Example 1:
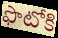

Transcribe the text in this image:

ఫొటోకి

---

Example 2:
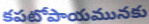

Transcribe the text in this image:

కపటోపాయమునకు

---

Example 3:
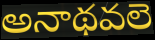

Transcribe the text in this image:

అనాథవలె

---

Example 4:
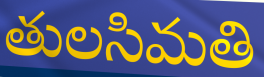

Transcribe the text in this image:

తులసిమతి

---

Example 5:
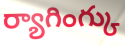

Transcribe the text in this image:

ర్యాగింగ్కు